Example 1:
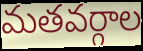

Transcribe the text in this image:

మతవర్గాల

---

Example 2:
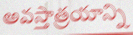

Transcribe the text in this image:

అవస్తాత్రయాన్ని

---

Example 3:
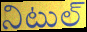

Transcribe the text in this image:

నిటుల్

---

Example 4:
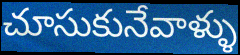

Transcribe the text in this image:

చూసుకునేవాళ్ళు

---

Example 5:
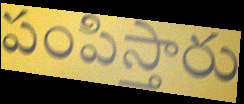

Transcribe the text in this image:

పంపిస్తారు